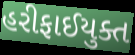
હરીફાઈયુક્ત